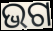
ଭଗ